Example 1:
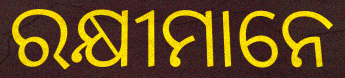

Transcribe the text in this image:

ରକ୍ଷୀମାନେ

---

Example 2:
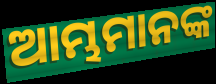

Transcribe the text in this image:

ଆମ୍ଭମାନଙ୍କ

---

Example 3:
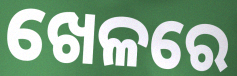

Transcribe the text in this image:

ଖେଳରେ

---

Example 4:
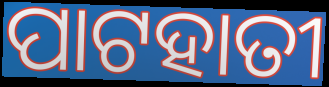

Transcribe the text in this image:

ପାଟହାତୀ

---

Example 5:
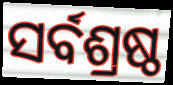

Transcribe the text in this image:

ସର୍ବଶ୍ରଷ୍ଠ